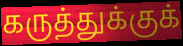
கருத்துக்குக்